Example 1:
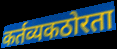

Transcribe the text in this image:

कर्तव्यकठोरता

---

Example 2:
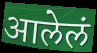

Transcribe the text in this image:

आलेलं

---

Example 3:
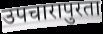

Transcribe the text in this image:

उपचारापुरता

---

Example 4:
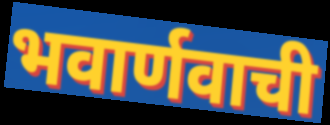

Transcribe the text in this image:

भवार्णवाची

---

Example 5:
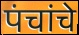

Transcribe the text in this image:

पंचांचे